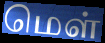
மெள்